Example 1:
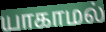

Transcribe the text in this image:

யாகாமல்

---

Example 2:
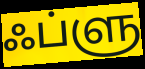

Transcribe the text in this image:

ஃப்ளு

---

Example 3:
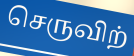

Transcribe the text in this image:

செருவிற்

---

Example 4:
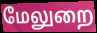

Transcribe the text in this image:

மேலுறை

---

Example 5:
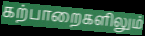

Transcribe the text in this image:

கற்பாறைகளிலும்